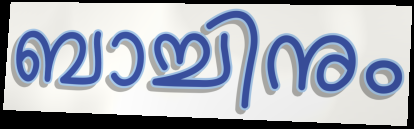
ബാച്ചിനും